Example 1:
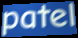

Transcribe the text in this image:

patel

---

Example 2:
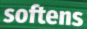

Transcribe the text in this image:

softens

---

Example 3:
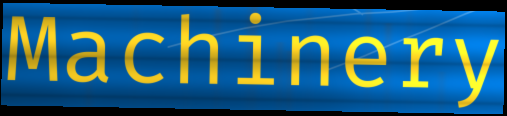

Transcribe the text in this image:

Machinery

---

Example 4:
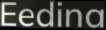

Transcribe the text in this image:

Eedina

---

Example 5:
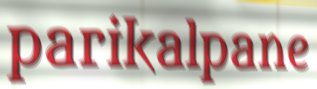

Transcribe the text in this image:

parikalpane